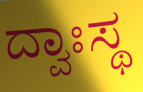
ದ್ವಾಃಸ್ಥ